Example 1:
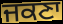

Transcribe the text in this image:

ਜਕਣਾ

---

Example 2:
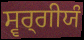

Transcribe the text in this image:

ਸ੍ਵਰ੍ਗੀਯੰ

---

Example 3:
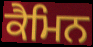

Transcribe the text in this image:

ਕੈਮਿਨ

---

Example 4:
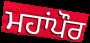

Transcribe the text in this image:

ਮਹਾਂਪੌਰ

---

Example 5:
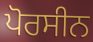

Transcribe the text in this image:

ਪੋਰਸੀਨ